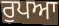
ਰੁਪਆ